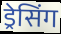
ड्रेसिंग